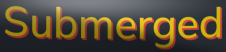
Submerged